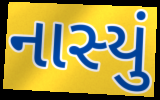
નાસ્યું